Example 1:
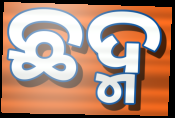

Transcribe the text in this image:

ଛଦ୍ମ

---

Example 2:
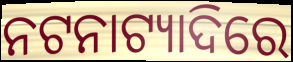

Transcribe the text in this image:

ନଟନାଟ୍ୟାଦିରେ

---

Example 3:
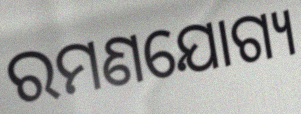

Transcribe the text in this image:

ରମଣଯୋଗ୍ୟ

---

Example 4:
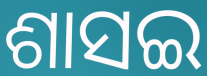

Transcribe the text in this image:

ଶାସଇ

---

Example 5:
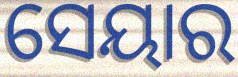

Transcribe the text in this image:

ସେୟାର